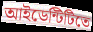
আইডেন্টিটিতে